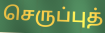
செருப்புத்